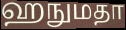
ஹநுமதா